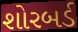
શોરબર્ડ